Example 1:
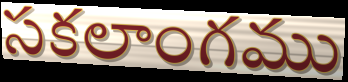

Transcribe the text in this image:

సకలాంగము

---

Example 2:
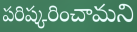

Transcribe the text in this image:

పరిష్కరించామని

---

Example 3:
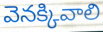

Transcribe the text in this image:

వెనక్కివాలి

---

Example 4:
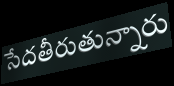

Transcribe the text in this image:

సేదతీరుతున్నారు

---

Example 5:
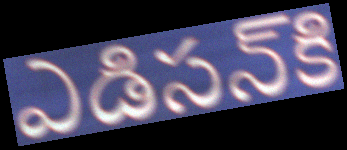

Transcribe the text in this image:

ఎడిసన్‌కి